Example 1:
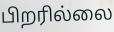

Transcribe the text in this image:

பிறரில்லை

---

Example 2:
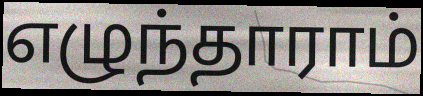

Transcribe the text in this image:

எழுந்தாராம்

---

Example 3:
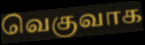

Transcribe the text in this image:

வெகுவாக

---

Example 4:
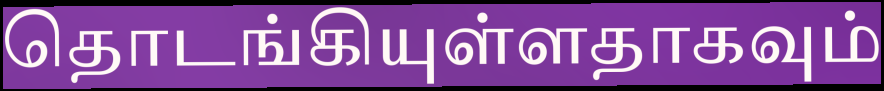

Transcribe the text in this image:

தொடங்கியுள்ளதாகவும்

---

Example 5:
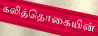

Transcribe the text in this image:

கலித்தொகையின்